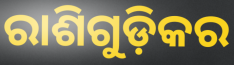
ରାଶିଗୁଡ଼ିକର